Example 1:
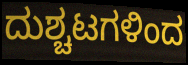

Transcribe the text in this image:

ದುಶ್ಚಟಗಳಿಂದ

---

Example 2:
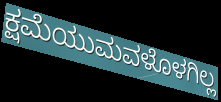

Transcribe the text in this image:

ಕ್ಷಮೆಯುಮವಳೊಳಗಿಲ್ಲ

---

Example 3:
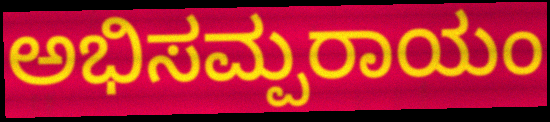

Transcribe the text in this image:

ಅಭಿಸಮ್ಪರಾಯಂ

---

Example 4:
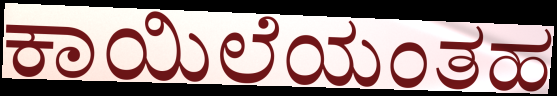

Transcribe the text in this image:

ಕಾಯಿಲೆಯಂತಹ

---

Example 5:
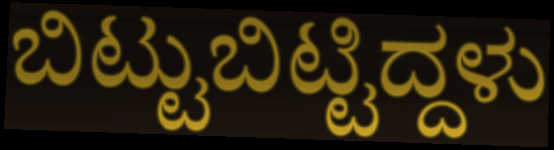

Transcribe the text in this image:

ಬಿಟ್ಟುಬಿಟ್ಟಿದ್ದಳು